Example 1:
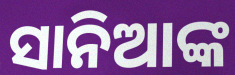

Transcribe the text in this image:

ସାନିଆଙ୍କ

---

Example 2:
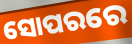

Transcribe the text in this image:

ସୋପରରେ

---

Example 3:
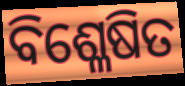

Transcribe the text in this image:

ବିଶ୍ଳେଷିତ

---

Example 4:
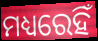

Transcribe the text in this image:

ମଧ୍ୟରେହିଁ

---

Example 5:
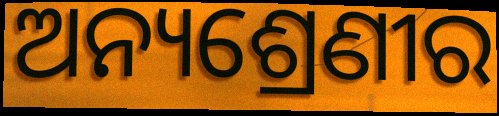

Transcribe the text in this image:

ଅନ୍ୟଶ୍ରେଣୀର